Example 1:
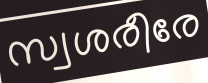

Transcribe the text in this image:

സ്വശരീരേ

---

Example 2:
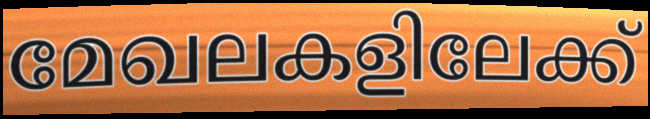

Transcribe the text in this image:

മേഖലകളിലേക്ക്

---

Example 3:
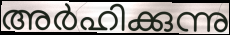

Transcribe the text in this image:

അർഹിക്കുന്നു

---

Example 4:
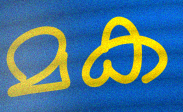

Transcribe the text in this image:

മക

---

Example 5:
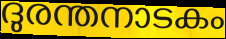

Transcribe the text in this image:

ദുരന്തനാടകം